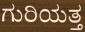
ಗುರಿಯತ್ತ